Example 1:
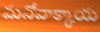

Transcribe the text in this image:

మనోవాక్కాయ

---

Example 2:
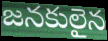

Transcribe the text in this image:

జనకులైన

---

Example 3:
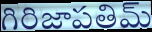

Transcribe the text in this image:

గిరిజాపతిమ్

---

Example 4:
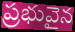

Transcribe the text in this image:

ప్రభువైన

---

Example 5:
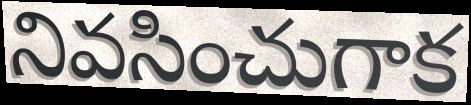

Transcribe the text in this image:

నివసించుగాక